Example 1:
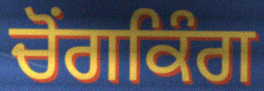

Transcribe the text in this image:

ਚੋਂਗਕਿੰਗ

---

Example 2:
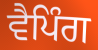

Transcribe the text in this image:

ਵੈਪਿੰਗ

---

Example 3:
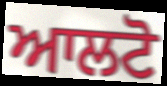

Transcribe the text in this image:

ਆਲਟੋ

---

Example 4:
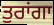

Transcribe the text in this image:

ਤੁਰਾਂਗਾ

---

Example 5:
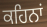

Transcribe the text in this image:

ਕਹਿਨਾਂ